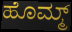
ಹೊಮ್ಮ್